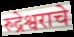
रुद्रेश्वराचे